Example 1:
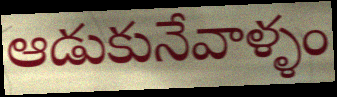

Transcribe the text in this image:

ఆడుకునేవాళ్ళం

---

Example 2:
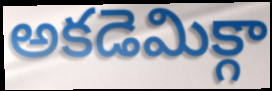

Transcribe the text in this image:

అకడెమిక్గా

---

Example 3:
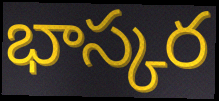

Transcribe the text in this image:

భాస్కర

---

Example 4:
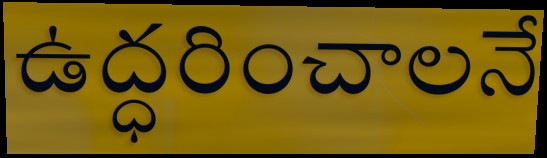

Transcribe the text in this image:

ఉద్ధరించాలనే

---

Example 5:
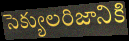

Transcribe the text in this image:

సెక్యులరిజానికి